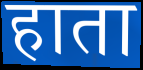
हाता